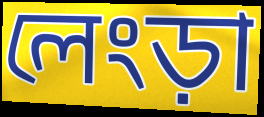
লেংড়া